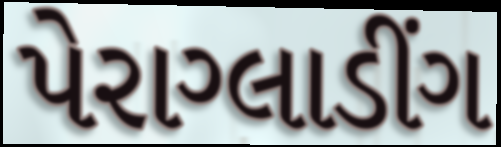
પેરાગ્લાડીંગ